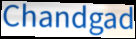
Chandgad